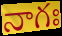
నాగః